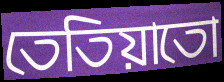
তেতিয়াতো